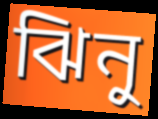
ঝিনু